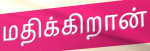
மதிக்கிறான்